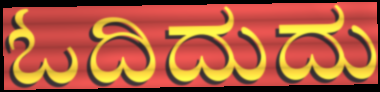
ಓದಿದುದು